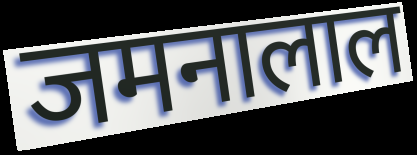
जमनालाल